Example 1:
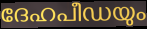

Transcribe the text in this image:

ദേഹപീഡയും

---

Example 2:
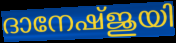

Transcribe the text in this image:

ദാനേഷ്ജുയി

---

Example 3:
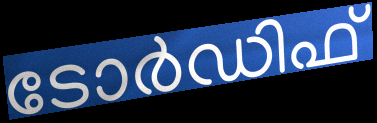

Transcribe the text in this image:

ടോർഡിഫ്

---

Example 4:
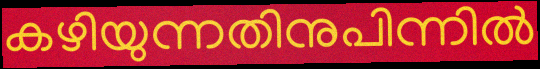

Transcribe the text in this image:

കഴിയുന്നതിനുപിന്നിൽ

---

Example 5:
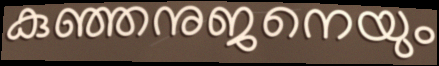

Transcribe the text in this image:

കുഞ്ഞനുജനെയും